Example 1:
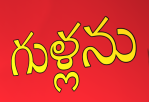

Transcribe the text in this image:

గుళ్లను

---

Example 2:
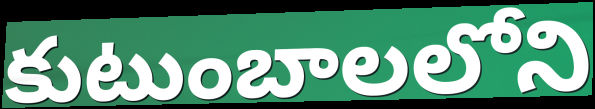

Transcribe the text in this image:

కుటుంబాలలోని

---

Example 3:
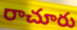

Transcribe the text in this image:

రాచూరు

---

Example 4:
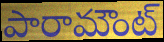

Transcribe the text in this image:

పారామౌంట్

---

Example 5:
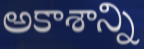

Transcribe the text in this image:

అకాశాన్ని